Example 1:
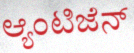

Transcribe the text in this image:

ಆ್ಯಂಟಿಜೆನ್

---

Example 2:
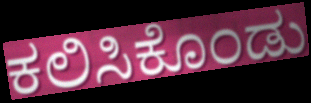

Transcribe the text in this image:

ಕಲಿಸಿಕೊಂಡು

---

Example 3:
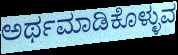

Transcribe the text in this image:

ಅರ್ಥಮಾಡಿಕೊಳ್ಳುವ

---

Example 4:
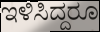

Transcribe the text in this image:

ಇಳಿಸಿದ್ದರೂ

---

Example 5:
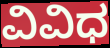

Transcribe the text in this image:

ವಿವಿಧ